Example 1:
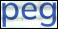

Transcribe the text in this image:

peg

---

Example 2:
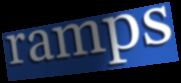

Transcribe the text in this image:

ramps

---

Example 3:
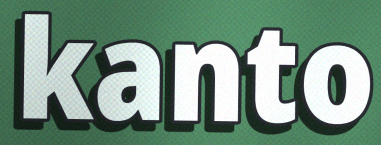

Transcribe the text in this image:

kanto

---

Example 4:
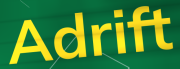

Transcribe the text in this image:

Adrift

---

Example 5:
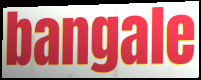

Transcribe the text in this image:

bangale